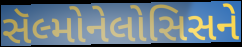
સૅલ્મોનેલોસિસને